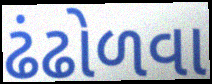
ઢંઢોળવા